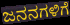
ಜನನಗಳಿಗೆ